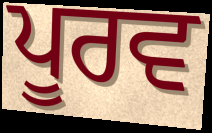
ਪੂਰਵ